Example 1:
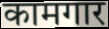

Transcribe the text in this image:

कामगार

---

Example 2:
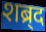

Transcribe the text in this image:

शब्र्द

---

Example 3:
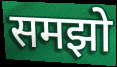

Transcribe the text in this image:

समझो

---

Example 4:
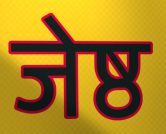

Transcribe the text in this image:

जेष्ठ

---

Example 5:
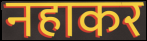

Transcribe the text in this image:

नहाकर